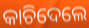
କାଚିଦେଲେ